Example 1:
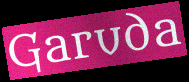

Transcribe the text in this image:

Garuda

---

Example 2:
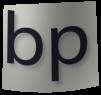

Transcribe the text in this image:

bp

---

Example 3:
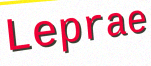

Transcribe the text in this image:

Leprae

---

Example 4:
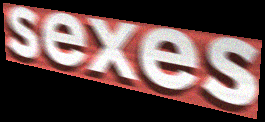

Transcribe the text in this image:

sexes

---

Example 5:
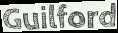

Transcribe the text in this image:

Guilford